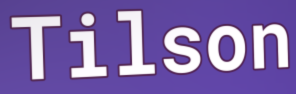
Tilson